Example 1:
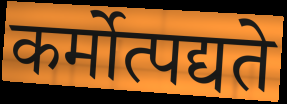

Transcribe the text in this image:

कर्मोत्पद्यते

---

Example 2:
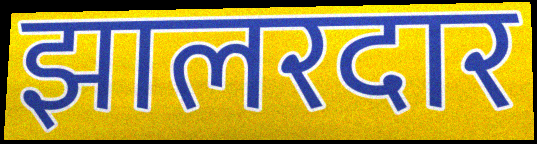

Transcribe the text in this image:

झालरदार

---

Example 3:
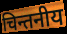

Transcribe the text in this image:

चिन्तनीय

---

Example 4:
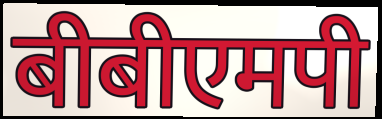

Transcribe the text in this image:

बीबीएमपी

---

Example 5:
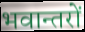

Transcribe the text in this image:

भवान्तरों